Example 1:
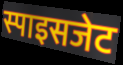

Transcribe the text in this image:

स्पाइसजेट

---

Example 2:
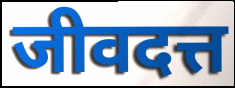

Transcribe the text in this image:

जीवदत्त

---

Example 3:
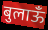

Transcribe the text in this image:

बुलाऊँ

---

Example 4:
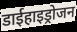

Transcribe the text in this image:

डाईहाइड्रोजन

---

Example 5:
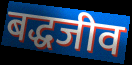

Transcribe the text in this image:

बद्धजीव